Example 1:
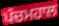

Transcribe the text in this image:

ਪੰਚਮਹਾਲ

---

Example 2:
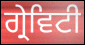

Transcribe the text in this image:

ਗ੍ਰੇਵਿਟੀ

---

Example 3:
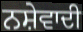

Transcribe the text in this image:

ਨਸ਼ੇਵਾਦੀ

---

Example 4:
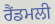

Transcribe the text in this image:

ਰੈਂਡਮਲੀ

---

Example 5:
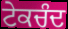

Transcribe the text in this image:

ਟੇਕਚੰਦ